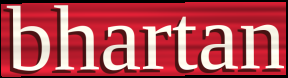
bhartan